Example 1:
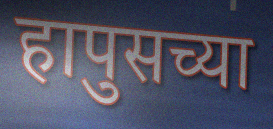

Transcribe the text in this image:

हापुसच्या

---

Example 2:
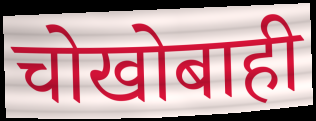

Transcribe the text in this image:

चोखोबाही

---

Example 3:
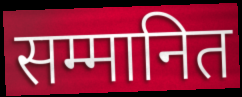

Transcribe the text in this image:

सम्मानित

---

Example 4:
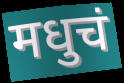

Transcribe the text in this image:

मधुचं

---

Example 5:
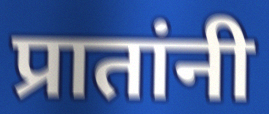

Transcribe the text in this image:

प्रातांनी